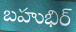
బహుభిర్